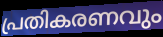
പ്രതികരണവും